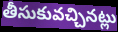
తీసుకువచ్చినట్లు